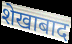
शेखाबाद